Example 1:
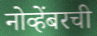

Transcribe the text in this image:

नोव्हेंबरची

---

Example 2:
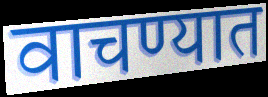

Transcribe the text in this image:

वाचण्यात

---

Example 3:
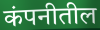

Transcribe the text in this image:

कंपनीतील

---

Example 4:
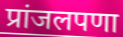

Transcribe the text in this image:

प्रांजलपणा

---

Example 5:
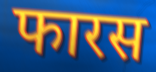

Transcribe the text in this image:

फारस